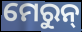
ମେରୁନ୍